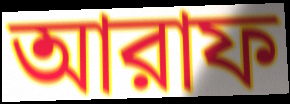
আরাফ